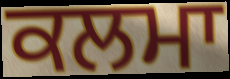
ਕਲਮਾ